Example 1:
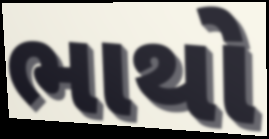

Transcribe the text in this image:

ભાથો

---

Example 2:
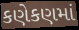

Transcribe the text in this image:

કણેકણમાં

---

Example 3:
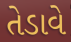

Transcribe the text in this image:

તેડાવે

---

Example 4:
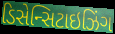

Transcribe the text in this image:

ડિસેન્સિટાઇઝિંગ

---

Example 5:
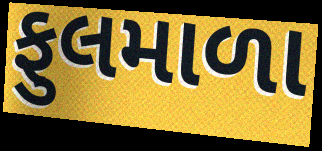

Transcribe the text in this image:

ફુલમાળા